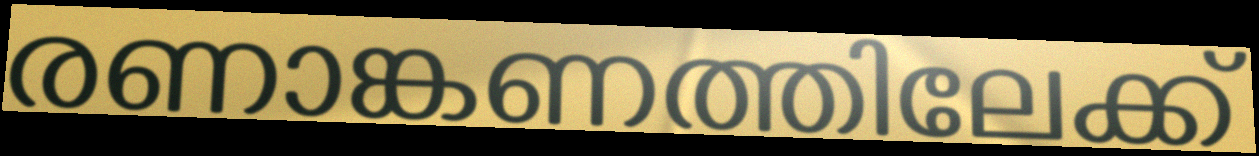
രണാങ്കണത്തിലേക്ക്